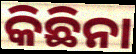
କିଛିନା